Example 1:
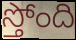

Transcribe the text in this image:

స్తోంది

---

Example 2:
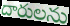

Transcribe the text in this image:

దారులను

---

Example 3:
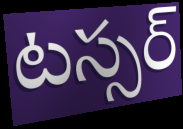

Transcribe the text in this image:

టస్సర్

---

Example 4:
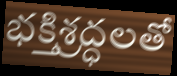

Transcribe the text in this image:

భక్తిశ్రద్ధలతో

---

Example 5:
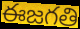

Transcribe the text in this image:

ఈజగతి